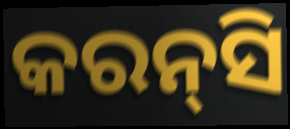
କରନ୍‌ସି